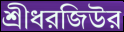
শ্রীধরজিউর